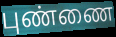
புண்ணை